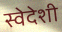
स्वेदेशी